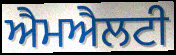
ਐਮਐਲਟੀ